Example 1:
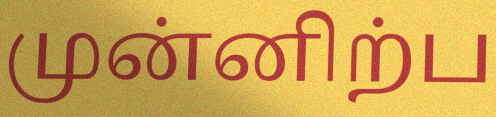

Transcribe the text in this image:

முன்னிற்ப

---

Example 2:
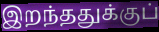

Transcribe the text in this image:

இறந்ததுக்குப்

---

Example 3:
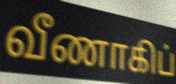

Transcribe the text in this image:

வீணாகிப்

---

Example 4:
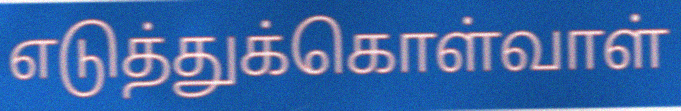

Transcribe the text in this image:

எடுத்துக்கொள்வாள்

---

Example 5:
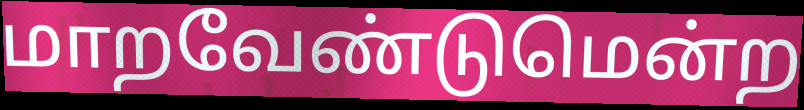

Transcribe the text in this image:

மாறவேண்டுமென்ற